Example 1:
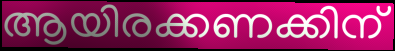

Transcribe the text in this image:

ആയിരക്കണക്കിന്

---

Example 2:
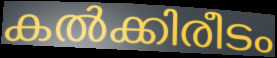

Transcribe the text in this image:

കൽക്കിരീടം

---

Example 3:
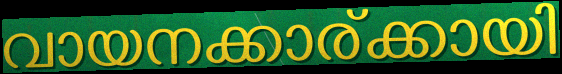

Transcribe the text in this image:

വായനക്കാര്ക്കായി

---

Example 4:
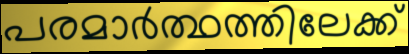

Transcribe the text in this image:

പരമാർത്ഥത്തിലേക്ക്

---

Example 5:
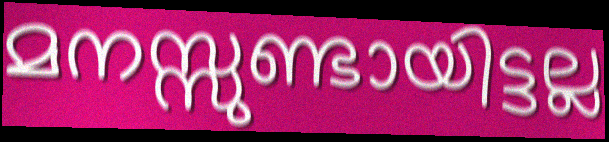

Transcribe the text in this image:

മനസ്സുണ്ടായിട്ടല്ല